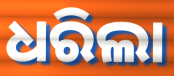
ଧରିଲା